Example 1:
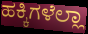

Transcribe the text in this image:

ಹಕ್ಕಿಗಳೆಲ್ಲಾ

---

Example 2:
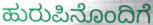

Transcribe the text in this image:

ಹುರುಪಿನೊಂದಿಗೆ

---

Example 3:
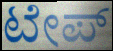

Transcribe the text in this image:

ಟೇಪ್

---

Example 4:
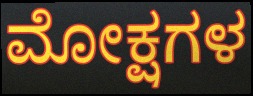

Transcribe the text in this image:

ಮೋಕ್ಷಗಳ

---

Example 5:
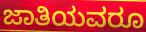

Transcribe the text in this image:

ಜಾತಿಯವರೂ